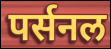
पर्सनल